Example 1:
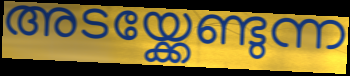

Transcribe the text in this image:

അടയ്ക്കേണ്ടുന്ന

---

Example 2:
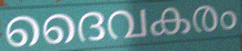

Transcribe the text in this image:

ദൈവകരം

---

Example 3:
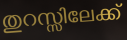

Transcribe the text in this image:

തുറസ്സിലേക്ക്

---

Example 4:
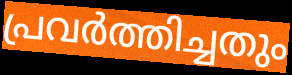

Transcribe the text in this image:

പ്രവർത്തിച്ചതും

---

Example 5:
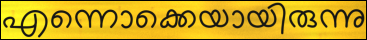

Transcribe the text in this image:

എന്നൊക്കെയായിരുന്നു